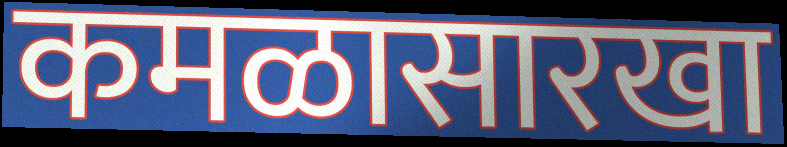
कमळासारखा